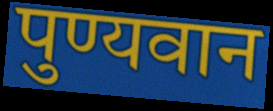
पुण्यवान